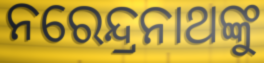
ନରେନ୍ଦ୍ରନାଥଙ୍କୁ